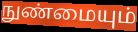
நுண்மையும்